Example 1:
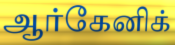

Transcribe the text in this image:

ஆர்கேனிக்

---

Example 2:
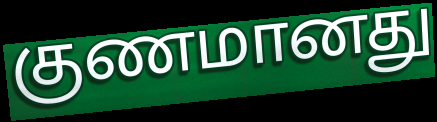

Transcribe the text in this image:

குணமானது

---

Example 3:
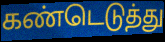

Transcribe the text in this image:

கண்டெடுத்து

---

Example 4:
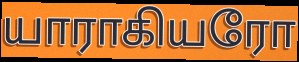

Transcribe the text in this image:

யாராகியரோ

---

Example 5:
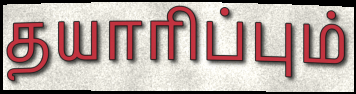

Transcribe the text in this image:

தயாரிப்பும்